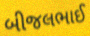
બીજલભાઈ